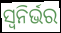
ସ୍ୱନିର୍ଭର